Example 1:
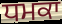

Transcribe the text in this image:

ਧਮਕਾ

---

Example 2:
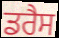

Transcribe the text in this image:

ਡਰੈਸ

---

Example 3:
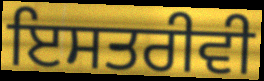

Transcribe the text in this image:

ਇਸਤਰੀਵੀ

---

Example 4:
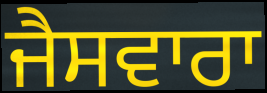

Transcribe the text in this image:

ਜੈਸਵਾਰਾ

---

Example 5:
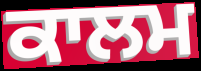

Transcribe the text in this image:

ਕਾਲਮ